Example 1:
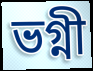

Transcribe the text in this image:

ভগ্নী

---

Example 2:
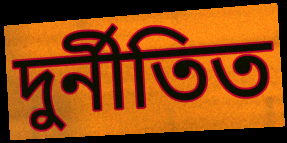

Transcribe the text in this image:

দুৰ্নীতিত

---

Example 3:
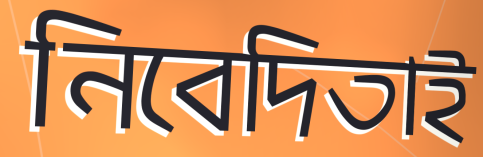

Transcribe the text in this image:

নিবেদিতাই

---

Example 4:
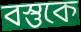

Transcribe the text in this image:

বস্তুকে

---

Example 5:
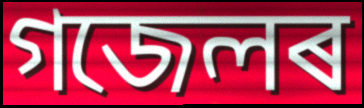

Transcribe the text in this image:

গজেলৰ